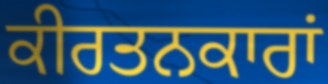
ਕੀਰਤਨਕਾਰਾਂ